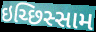
ઇચ્છિસ્સામ